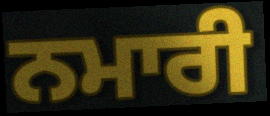
ਨਮਾਰੀ